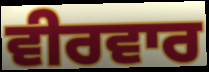
ਵੀਰਵਾਰ